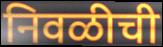
निवळीची